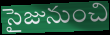
సైజునుంచి